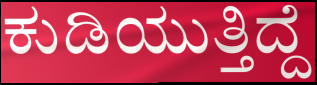
ಕುಡಿಯುತ್ತಿದ್ದೆ